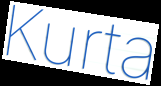
Kurta